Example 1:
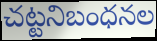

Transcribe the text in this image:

చట్టనిబంధనల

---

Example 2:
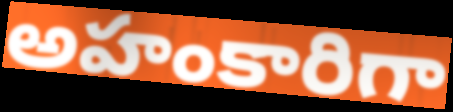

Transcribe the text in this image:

అహంకారిగా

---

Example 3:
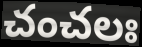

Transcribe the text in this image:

చంచలః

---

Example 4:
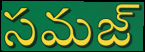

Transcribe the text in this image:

సమజ్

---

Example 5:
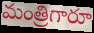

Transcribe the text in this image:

మంత్రిగారూ